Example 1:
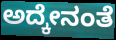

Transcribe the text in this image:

ಅದ್ಕೇನಂತೆ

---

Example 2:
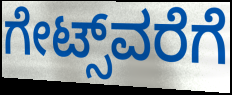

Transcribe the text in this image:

ಗೇಟ್ಸ್‌ವರೆಗೆ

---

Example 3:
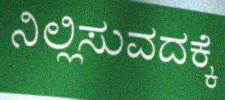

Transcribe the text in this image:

ನಿಲ್ಲಿಸುವದಕ್ಕೆ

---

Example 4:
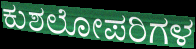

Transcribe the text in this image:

ಕುಶಲೋಪರಿಗಳ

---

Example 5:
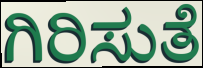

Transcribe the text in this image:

ಗಿರಿಸುತೆ